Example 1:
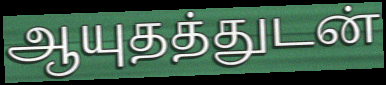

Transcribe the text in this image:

ஆயுதத்துடன்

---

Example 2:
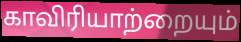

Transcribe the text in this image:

காவிரியாற்றையும்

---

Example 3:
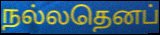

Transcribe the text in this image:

நல்லதெனப்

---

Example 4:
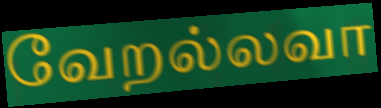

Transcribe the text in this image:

வேறல்லவா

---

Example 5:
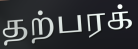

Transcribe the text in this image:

தற்பரக்